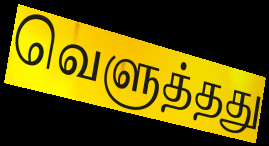
வெளுத்தது